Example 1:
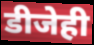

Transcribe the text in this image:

डीजेही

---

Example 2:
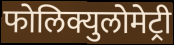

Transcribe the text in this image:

फोलिक्युलोमेट्री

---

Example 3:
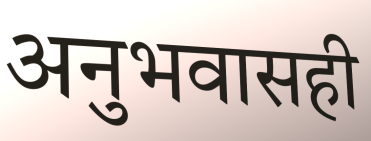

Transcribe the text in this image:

अनुभवासही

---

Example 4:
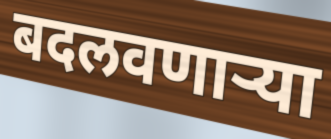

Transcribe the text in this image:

बदलवणार्‍या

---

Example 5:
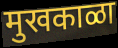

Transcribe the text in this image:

मुखकाळा